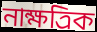
নাক্ষত্রিক